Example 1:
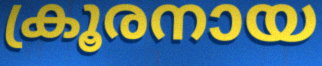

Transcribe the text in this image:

ക്രൂരനായ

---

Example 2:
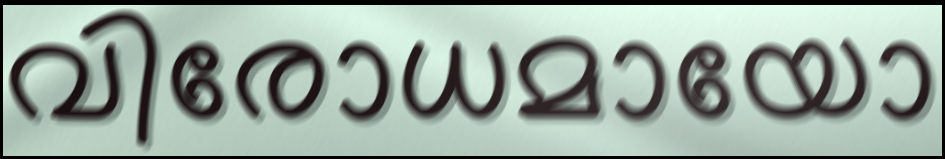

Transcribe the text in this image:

വിരോധമായോ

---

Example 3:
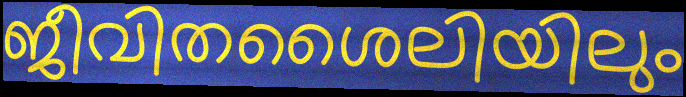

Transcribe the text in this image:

ജീവിതശൈലിയിലും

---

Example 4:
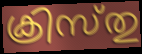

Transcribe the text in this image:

ക്രിസ്‌തു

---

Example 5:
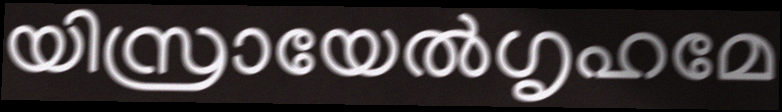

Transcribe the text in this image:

യിസ്രായേൽഗൃഹമേ